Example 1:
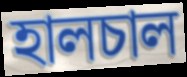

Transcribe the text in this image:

হালচাল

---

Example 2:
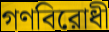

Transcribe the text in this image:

গণবিরোধী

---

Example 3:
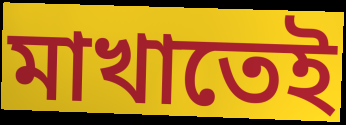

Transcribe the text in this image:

মাখাতেই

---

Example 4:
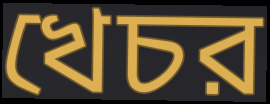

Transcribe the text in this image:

খেচর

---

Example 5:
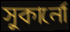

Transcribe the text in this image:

সুকার্নো